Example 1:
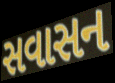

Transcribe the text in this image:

સવાસન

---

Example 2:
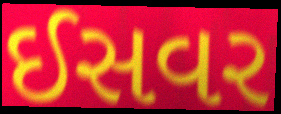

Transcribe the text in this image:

ઈસવર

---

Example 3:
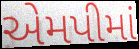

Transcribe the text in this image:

એમપીમાં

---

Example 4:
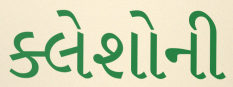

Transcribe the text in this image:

ક્લેશોની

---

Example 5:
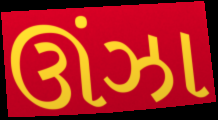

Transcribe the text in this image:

ઊંઝા